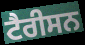
ਟੈਰੀਸਨ